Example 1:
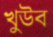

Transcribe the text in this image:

খুউব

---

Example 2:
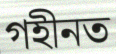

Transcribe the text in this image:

গহীনত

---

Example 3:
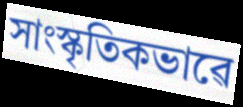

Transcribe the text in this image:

সাংস্কৃতিকভাৱে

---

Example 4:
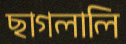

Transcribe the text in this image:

ছাগলালি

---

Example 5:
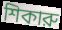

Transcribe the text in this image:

শিকাৰু